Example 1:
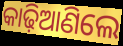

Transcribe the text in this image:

କାଢ଼ିଆଣିଲେ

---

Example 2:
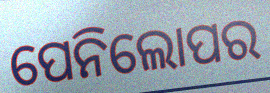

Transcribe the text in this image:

ପେନିଲୋପର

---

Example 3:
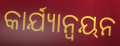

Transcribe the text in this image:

କାର୍ଯ୍ୟାନ୍ୱୟନ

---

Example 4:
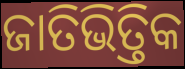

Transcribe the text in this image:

ଜାତିଭିତ୍ତିକ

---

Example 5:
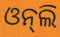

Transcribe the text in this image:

ଓନ୍‍ଲି